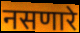
नसणारे